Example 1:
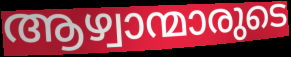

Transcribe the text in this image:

ആഴ്വാന്മാരുടെ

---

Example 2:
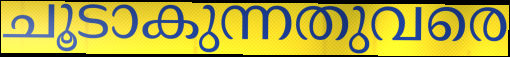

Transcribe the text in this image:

ചൂടാകുന്നതുവരെ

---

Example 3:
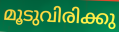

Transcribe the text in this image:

മൂടുവിരിക്കു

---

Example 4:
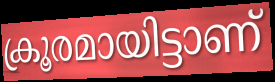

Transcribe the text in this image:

ക്രൂരമായിട്ടാണ്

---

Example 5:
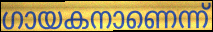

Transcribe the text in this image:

ഗായകനാണെന്ന്